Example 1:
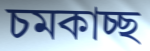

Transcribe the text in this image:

চমকাচ্ছ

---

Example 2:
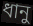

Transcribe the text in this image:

ধানু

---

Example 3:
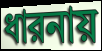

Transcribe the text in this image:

ধারনায়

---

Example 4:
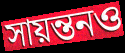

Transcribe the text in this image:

সায়ন্তনও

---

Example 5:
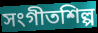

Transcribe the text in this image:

সংগীতশিল্প